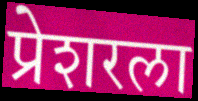
प्रेशरला